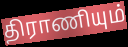
திராணியும்